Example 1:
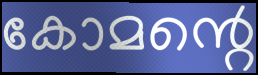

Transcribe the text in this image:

കോമന്റെ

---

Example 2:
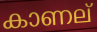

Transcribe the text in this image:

കാണല്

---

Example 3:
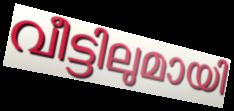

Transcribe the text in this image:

വീട്ടിലുമായി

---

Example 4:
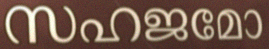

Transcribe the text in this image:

സഹജമോ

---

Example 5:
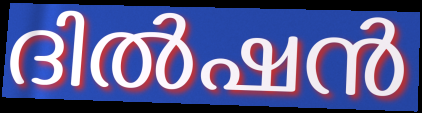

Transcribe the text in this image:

ദിൽഷൻ